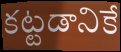
కట్టడానికే